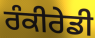
ਰੰਕੀਰੇਡੀ